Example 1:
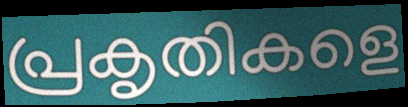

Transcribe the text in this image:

പ്രകൃതികളെ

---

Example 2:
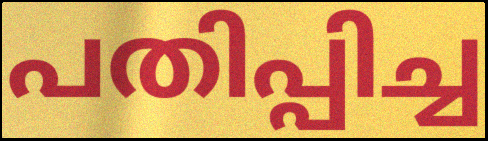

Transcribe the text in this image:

പതിപ്പിച്ച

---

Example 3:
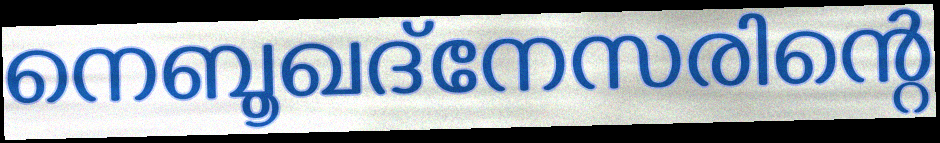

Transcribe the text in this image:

നെബൂഖദ്നേസരിന്റെ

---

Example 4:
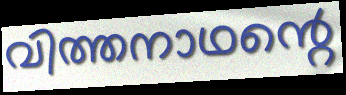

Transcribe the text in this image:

വിത്തനാഥന്റെ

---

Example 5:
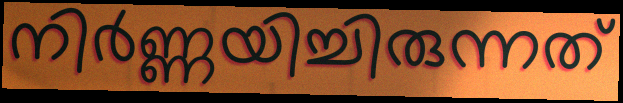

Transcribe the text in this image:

നിർണ്ണയിച്ചിരുന്നത്